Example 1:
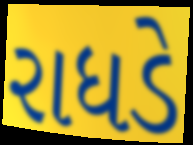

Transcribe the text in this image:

રાધડે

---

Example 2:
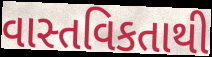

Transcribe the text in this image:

વાસ્તવિકતાથી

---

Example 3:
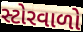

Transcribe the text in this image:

સ્ટોરવાળો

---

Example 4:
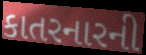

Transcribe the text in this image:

કાતરનારની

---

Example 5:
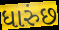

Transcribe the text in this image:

ધારુંછ